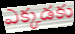
ఎక్కడకు